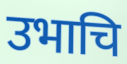
उभाचि